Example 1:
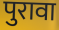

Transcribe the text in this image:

पुरावा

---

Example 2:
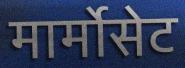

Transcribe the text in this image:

मार्मोसेट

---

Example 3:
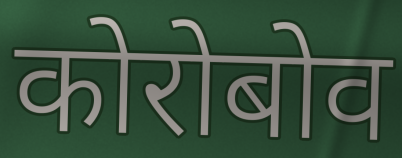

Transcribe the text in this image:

कोरोबोव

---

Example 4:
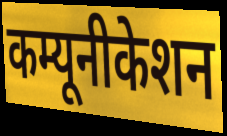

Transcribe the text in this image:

कम्यूनीकेशन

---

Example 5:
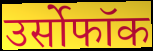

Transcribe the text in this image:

उर्सोफॉक